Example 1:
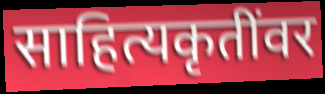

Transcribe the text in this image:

साहित्यकृतींवर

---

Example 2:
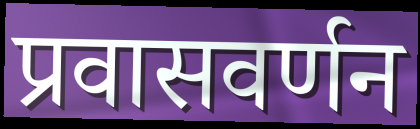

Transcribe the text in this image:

प्रवासवर्णन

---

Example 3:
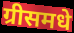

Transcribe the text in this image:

ग्रीसमधे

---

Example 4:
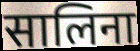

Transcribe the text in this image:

सालिना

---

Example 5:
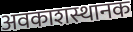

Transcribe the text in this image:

अवकाशस्थानक